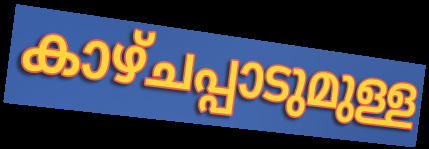
കാഴ്ചപ്പാടുമുള്ള